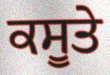
ਕਸੂਤੇ